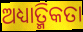
ଅଧ୍ୟାତ୍ମିକତା